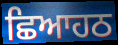
ਛਿਆਹਠ